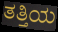
ತತ್ತಿಯ